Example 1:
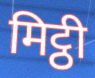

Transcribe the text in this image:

मिट्ठी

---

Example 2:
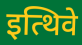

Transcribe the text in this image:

इत्थिवे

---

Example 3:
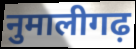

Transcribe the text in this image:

नुमालीगढ़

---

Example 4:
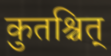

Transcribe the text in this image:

कुतश्चित्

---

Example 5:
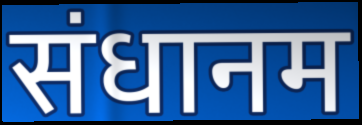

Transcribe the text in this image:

संधानम